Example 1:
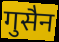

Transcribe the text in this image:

गुसैन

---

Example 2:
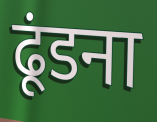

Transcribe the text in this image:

ढूंडना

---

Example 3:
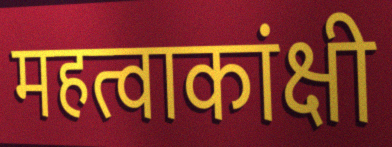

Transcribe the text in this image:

महत्‍वाकांक्षी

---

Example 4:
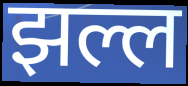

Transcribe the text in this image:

झल्ल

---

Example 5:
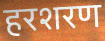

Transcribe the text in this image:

हरशरण